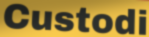
Custodi